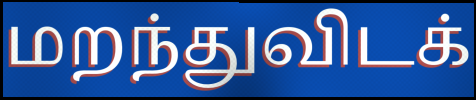
மறந்துவிடக்